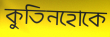
কুতিনহোকে